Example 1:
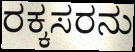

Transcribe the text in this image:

ರಕ್ಕಸರನು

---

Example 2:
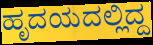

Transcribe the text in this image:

ಹೃದಯದಲ್ಲಿದ್ದ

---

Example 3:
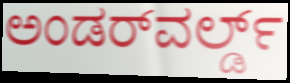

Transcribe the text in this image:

ಅಂಡರ್‌ವರ್ಲ್ಡ್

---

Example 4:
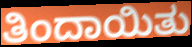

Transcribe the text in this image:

ತಿಂದಾಯಿತು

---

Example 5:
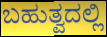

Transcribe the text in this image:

ಬಹುತ್ವದಲ್ಲಿ